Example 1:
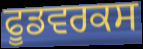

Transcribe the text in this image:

ਫੂਡਵਰਕਸ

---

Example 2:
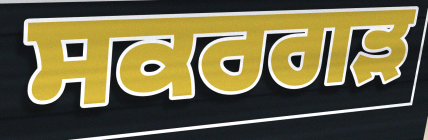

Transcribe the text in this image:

ਸਕਰਗੜ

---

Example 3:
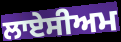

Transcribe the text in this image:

ਲਾਏਸੀਅਮ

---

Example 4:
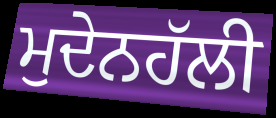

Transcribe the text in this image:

ਮੁਦੇਨਹੱਲੀ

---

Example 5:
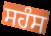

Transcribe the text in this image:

ਸਹੰਸ